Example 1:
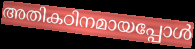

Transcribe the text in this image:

അതികഠിനമായപ്പോൾ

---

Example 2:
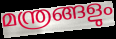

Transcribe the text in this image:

മന്ത്രങ്ങളും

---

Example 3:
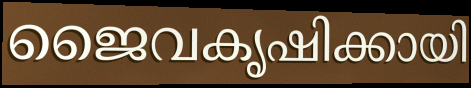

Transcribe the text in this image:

ജൈവകൃഷിക്കായി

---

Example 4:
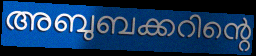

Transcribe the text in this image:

അബുബക്കറിന്റെ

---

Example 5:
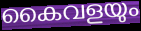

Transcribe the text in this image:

കൈവളയും